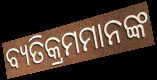
ବ୍ୟତିକ୍ରମମାନଙ୍କ